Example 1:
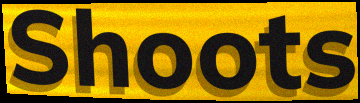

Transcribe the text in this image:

Shoots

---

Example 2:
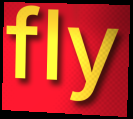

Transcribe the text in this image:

fly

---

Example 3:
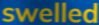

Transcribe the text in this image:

swelled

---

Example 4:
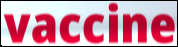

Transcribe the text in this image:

vaccine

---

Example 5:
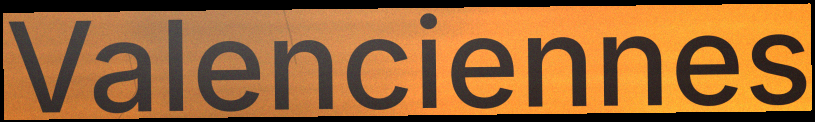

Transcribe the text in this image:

Valenciennes